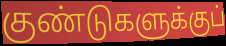
குண்டுகளுக்குப்